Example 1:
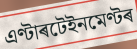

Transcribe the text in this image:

এণ্টাৰটেইনমেণ্টৰ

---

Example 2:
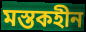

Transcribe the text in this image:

মস্তকহীন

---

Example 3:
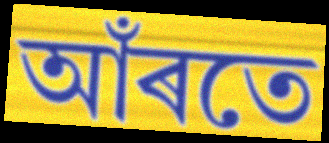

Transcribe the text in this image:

আঁৰতে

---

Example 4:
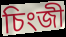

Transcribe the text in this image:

চিংজী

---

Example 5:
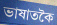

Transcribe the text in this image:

ভাষাতকৈ